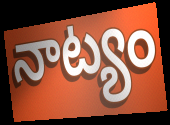
నాట్యం